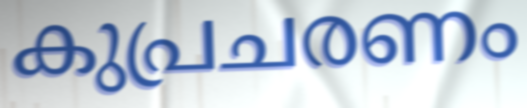
കുപ്രചരണം